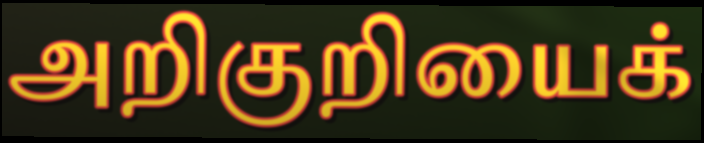
அறிகுறியைக்